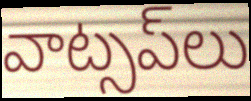
వాట్సప్‌లు